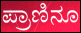
ಪ್ರಾಣಿನೂ